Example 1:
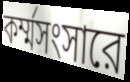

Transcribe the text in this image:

কর্ম্মসংসারে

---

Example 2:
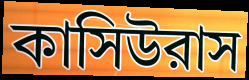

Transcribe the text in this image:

কাসিউরাস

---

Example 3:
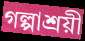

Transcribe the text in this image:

গল্পাশ্রয়ী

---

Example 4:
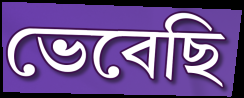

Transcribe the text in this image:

ভেবেছি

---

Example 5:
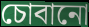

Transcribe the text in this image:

চোবানো